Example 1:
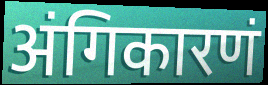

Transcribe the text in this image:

अंगिकारणं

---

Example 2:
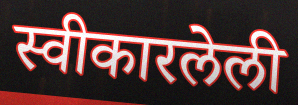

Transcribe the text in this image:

स्वीकारलेली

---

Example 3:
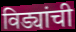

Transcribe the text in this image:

विड्यांची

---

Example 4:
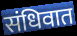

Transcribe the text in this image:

संधिवात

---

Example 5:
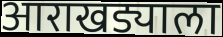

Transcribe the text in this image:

आराखड्याला